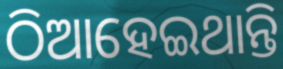
ଠିଆହେଇଥାନ୍ତି